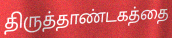
திருத்தாண்டகத்தை